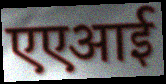
एएआई